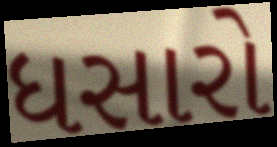
ધસારો